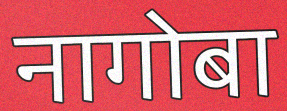
नागोबा